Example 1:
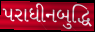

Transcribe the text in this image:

પરાધીનબુદ્ધિ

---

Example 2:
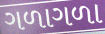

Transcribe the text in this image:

ગળાગળા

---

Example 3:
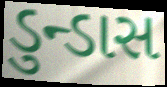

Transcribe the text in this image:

ડુન્ડાસ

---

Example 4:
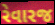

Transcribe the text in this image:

રેવારજ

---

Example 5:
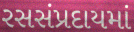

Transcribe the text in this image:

રસસંપ્રદાયમાં